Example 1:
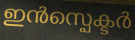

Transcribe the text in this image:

ഇൻസ്പെക്ടർ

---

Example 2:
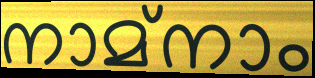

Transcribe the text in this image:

നാമ്നാം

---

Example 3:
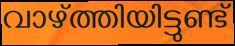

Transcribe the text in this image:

വാഴ്ത്തിയിട്ടുണ്ട്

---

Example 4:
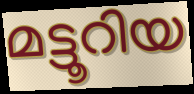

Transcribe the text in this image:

മട്ടൂറിയ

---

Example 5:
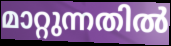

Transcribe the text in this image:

മാറ്റുന്നതിൽ